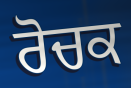
ਰੋਚਕ